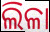
ଲିଳା